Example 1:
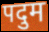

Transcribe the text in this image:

पदुम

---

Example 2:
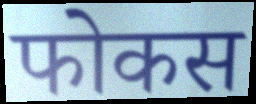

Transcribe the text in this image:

फोकस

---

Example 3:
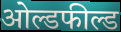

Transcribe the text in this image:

ओल्डफील्ड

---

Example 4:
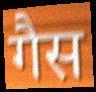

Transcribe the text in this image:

गैस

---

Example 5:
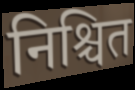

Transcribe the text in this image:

निश्चित